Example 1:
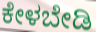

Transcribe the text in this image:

ಕೇಳಬೇಡಿ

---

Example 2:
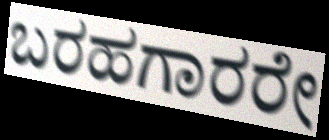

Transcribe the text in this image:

ಬರಹಗಾರರೇ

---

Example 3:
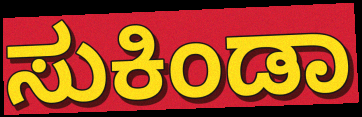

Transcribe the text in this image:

ಸುಕಿಂಡಾ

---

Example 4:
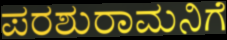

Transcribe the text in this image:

ಪರಶುರಾಮನಿಗೆ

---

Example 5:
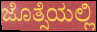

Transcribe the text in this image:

ಜೊತ್ಸೆಯಲ್ಲಿ